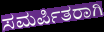
ಸಮರ್ಪಿತರಾಗಿ